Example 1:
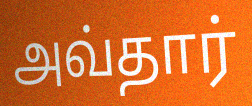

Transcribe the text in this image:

அவ்தார்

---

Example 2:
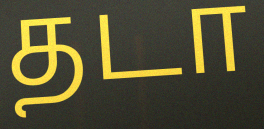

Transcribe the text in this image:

தடா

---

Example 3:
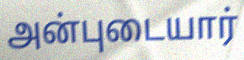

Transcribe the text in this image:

அன்புடையார்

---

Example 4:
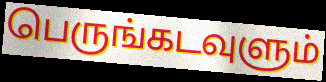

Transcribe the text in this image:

பெருங்கடவுளும்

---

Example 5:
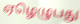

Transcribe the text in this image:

ஏழெழுபது